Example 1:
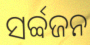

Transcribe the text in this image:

ସର୍ବ୍ବଜନ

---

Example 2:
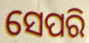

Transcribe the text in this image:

ସେପରି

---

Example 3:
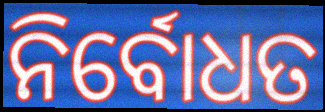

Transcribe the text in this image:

ନିର୍ବୋଧତ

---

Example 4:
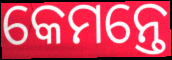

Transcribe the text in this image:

କେମନ୍ତେ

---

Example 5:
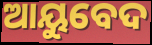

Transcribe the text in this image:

ଆୟୁବେଦ